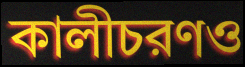
কালীচরণও